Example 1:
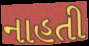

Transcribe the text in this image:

નાહતી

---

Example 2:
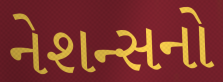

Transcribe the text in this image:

નેશન્સનો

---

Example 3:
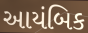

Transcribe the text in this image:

આયંબિક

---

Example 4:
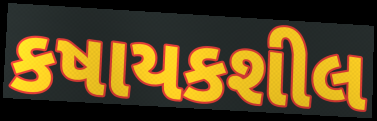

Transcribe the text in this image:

કષાયકશીલ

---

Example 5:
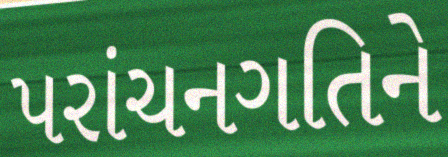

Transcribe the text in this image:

પરાંચનગતિને